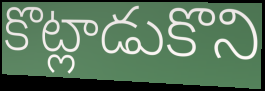
కొట్లాడుకొని